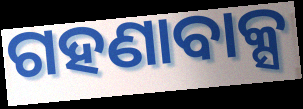
ଗହଣାବାକ୍ସ